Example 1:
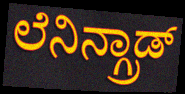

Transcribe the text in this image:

ಲೆನಿನ್ಗ್ರಾಡ್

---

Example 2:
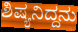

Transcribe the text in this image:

ಶಿಷ್ಯನಿದ್ದನು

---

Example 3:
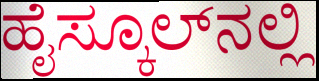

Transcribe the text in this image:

ಹೈಸ್ಕೂಲ್‍ನಲ್ಲಿ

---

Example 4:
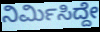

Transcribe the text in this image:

ನಿರ್ಮಿಸಿದ್ದೇ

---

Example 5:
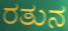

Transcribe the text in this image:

ರತುನ